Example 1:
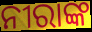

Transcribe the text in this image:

ନୀରାଙ୍କ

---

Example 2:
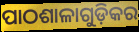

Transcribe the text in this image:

ପାଠଶାଳାଗୁଡ଼ିକର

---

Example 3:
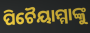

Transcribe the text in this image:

ପିଚୈୟାମ୍ମାଙ୍କୁ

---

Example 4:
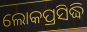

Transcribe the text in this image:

ଲୋକପ୍ରସିଦ୍ଧି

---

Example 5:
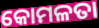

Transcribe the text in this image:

କୋମଳତା